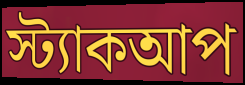
স্ট্যাকআপ